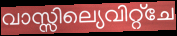
വാസ്സില്യെവിറ്റ്ചേ